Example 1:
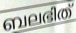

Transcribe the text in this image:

ബലഭിത്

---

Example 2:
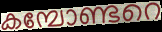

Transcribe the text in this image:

കമ്പോണ്ടറെ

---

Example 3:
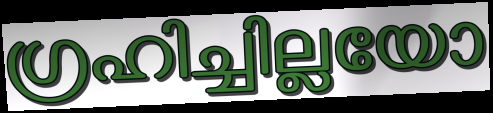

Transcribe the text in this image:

ഗ്രഹിച്ചില്ലയോ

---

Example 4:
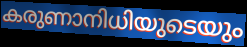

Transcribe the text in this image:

കരുണാനിധിയുടെയും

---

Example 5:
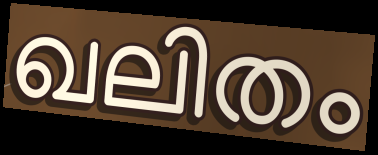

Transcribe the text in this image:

ഖലിതം